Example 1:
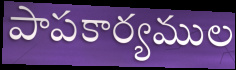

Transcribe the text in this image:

పాపకార్యముల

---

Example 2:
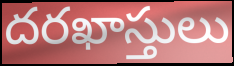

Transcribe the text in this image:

దరఖాస్తులు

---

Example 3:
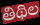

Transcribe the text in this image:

తిథిల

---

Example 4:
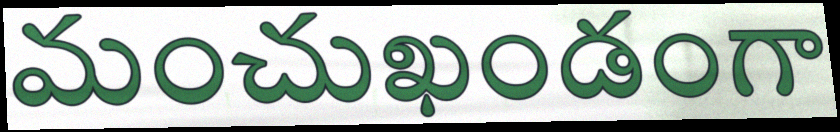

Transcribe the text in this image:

మంచుఖండంగా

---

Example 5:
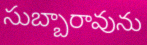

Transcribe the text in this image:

సుబ్బారావును